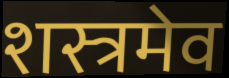
शस्त्रमेव